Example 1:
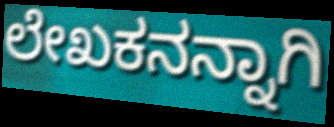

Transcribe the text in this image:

ಲೇಖಕನನ್ನಾಗಿ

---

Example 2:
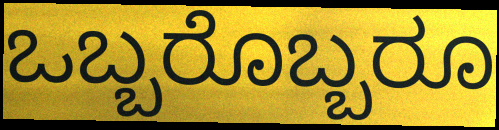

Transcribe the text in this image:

ಒಬ್ಬರೊಬ್ಬರೂ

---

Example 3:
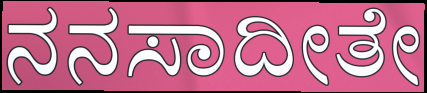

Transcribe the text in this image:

ನನಸಾದೀತೇ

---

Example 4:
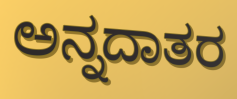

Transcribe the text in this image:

ಅನ್ನದಾತರ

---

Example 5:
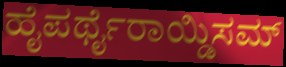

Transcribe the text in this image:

ಹೈಪರ್ಥೈರಾಯ್ಡಿಸಮ್